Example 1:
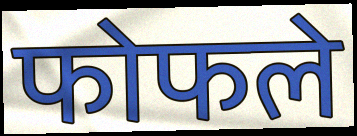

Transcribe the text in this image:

फोफले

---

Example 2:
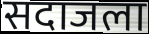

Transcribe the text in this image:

सदाजला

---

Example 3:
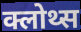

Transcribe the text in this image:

क्लोथ्स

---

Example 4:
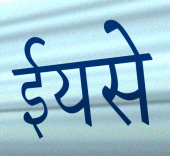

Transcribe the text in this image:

ईयसे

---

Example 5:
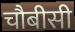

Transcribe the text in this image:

चौबीसी